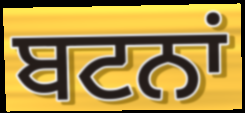
ਬਟਨਾਂ